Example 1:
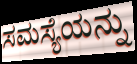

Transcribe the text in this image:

ಸಮಸ್ಯೆಯನ್ನು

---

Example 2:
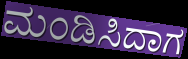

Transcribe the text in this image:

ಮಂಡಿಸಿದಾಗ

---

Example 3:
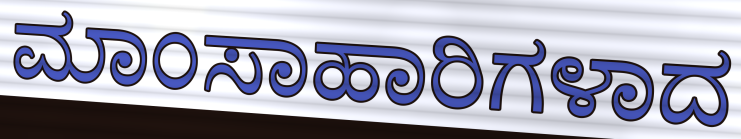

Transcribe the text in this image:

ಮಾಂಸಾಹಾರಿಗಳಾದ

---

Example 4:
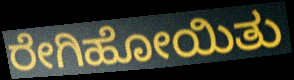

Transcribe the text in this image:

ರೇಗಿಹೋಯಿತು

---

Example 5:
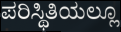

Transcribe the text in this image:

ಪರಿಸ್ಥಿತಿಯಲ್ಲೂ